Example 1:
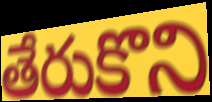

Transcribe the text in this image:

తేరుకొని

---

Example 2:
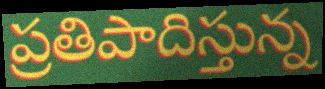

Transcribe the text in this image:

ప్రతిపాదిస్తున్న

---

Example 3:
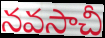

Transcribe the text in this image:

నవసాచీ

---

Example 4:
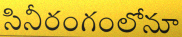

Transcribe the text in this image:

సినీరంగంలోనూ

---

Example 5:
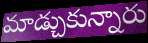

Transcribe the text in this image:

మాడ్చుకున్నారు